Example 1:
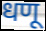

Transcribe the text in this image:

धणू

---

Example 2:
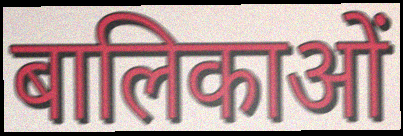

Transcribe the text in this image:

बालिकाओं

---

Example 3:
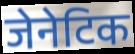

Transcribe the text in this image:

जेनेटिक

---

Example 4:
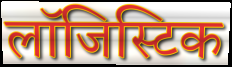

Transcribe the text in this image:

लॉजिस्टिक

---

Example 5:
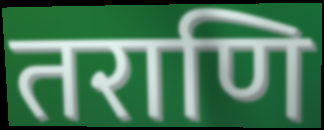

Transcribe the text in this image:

तराणि